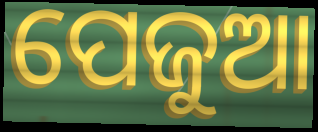
ପେଜୁଆ